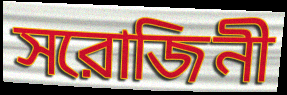
সরোজিনী